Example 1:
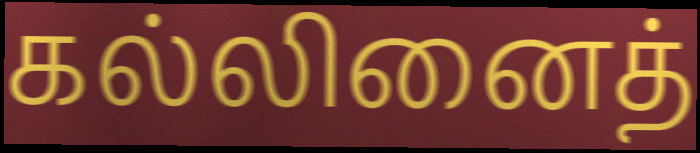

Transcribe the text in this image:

கல்லினைத்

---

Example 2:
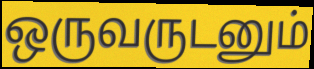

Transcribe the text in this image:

ஒருவருடனும்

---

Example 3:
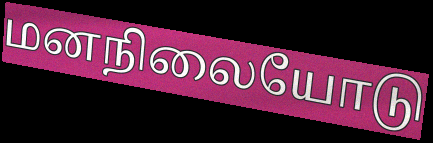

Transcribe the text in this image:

மனநிலையோடு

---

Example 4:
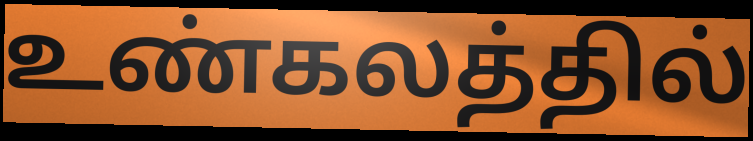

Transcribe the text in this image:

உண்கலத்தில்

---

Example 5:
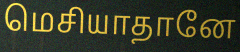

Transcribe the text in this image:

மெசியாதானே